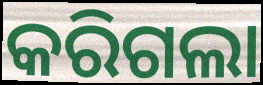
କରିଗଲା